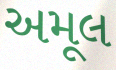
અમૂલ